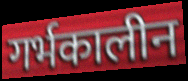
गर्भकालीन